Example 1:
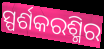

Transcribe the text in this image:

ସ୍ପର୍ଶକରଶ୍ମିର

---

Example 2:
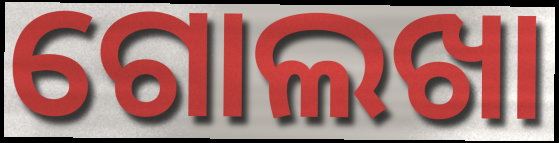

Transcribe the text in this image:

ଗୋଲଖା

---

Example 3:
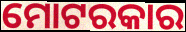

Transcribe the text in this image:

ମୋଟରକାର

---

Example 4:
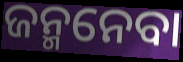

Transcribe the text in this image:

ଜନ୍ମନେବା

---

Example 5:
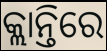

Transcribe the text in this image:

କ୍ଲାନ୍ତିରେ